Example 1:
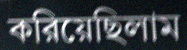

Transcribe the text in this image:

করিয়েছিলাম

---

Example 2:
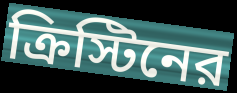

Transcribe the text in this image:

ক্রিস্টিনের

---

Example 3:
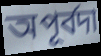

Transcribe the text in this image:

অপূর্বদা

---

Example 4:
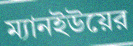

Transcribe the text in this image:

ম্যানইউয়ের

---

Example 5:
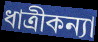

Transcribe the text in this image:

ধাত্রীকন্যা